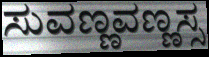
ಸುವಣ್ಣವಣ್ಣಸ್ಸ